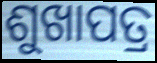
ଶୁଖାପତ୍ର